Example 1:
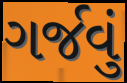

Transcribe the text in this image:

ગર્જવું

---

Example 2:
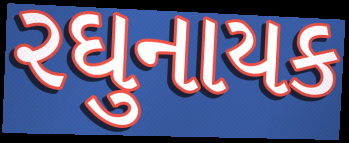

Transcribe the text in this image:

રઘુનાયક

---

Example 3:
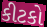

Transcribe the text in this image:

કીટકો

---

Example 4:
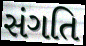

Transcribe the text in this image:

સંગતિ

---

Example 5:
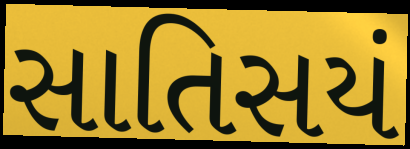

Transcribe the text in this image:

સાતિસયં